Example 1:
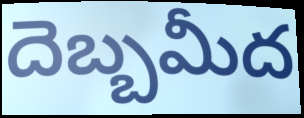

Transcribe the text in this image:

దెబ్బమీద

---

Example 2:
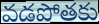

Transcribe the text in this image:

వడపోతకు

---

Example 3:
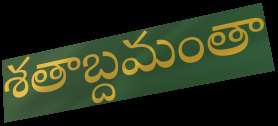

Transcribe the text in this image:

శతాబ్దమంతా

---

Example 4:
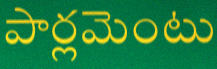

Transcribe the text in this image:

పార్లమెంటు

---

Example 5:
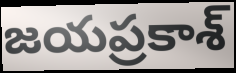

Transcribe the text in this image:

జయప్రకాశ్